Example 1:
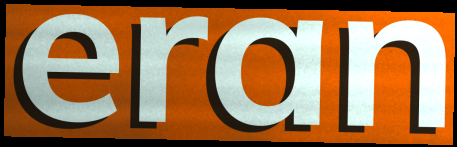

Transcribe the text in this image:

eran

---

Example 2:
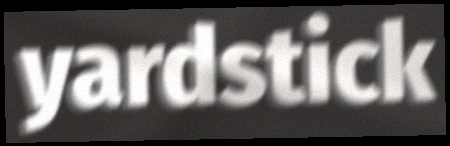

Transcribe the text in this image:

yardstick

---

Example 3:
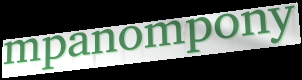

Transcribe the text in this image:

mpanompony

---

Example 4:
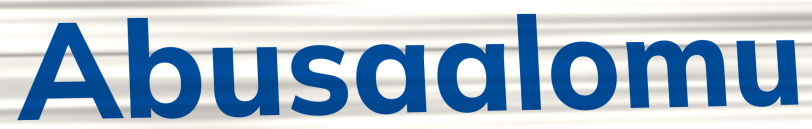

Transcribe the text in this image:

Abusaalomu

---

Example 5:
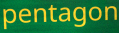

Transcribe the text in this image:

pentagon